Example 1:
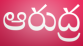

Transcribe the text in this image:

ఆరుద్ర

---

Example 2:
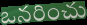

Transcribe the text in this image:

ఒనరించు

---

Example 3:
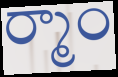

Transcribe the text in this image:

ర్మాం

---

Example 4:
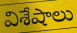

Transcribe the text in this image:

విశేషాలు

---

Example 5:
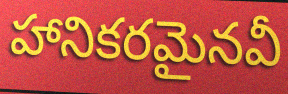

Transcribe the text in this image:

హానికరమైనవీ